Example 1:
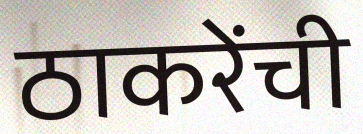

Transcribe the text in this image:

ठाकरेंची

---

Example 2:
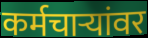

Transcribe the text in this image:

कर्मचाऱ्यांवर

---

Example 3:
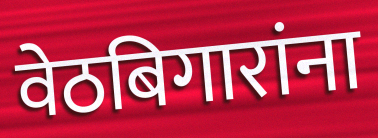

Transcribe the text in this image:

वेठबिगारांना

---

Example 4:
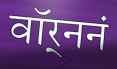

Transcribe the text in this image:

वॉर्ननं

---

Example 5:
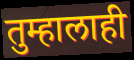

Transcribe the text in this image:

तुम्हालाही